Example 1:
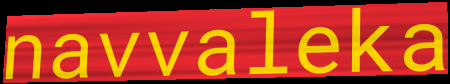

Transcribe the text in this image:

navvaleka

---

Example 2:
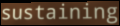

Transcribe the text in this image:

sustaining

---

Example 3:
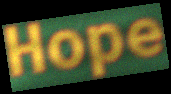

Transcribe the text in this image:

Hope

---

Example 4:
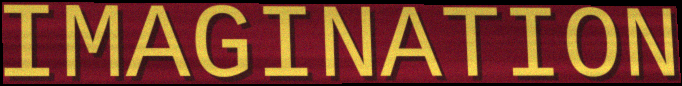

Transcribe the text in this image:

IMAGINATION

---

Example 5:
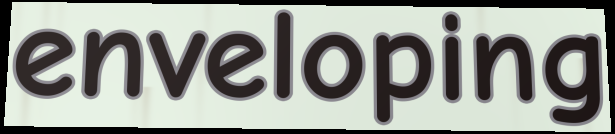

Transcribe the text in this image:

enveloping